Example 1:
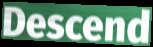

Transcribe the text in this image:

Descend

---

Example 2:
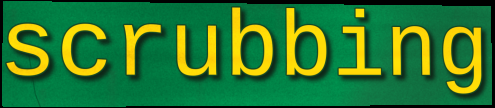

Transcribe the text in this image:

scrubbing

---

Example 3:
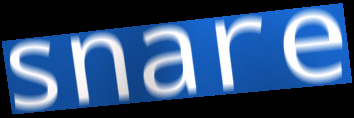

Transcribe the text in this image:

snare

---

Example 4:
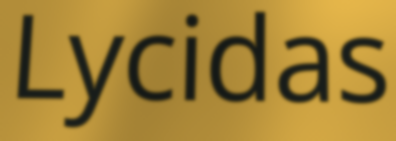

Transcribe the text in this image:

Lycidas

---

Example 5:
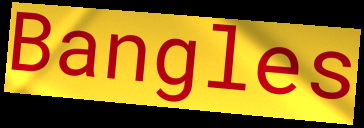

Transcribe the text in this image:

Bangles